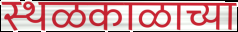
स्थळकाळाच्या